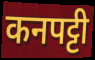
कनपट्टी